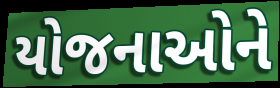
યોજનાઓને